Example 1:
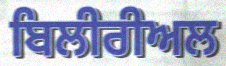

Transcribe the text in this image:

ਬਿਲੀਰੀਅਲ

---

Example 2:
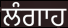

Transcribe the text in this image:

ਲੰਗਾਹ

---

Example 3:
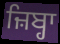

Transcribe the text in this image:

ਜ਼ਿਬ੍ਹਾ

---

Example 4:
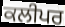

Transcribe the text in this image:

ਕਲੀਪਰ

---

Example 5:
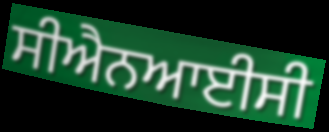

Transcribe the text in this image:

ਸੀਐਨਆਈਸੀ